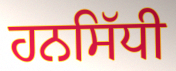
ਹਨਸਿੱਧੀ